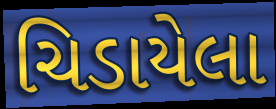
ચિડાયેલા